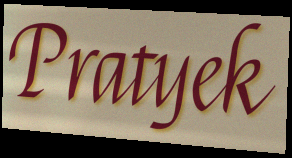
Pratyek